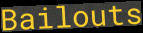
Bailouts